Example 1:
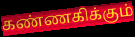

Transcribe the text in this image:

கண்ணகிக்கும்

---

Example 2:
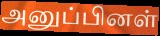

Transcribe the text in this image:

அனுப்பினள்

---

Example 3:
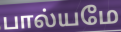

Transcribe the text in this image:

பால்யமே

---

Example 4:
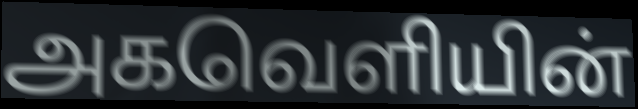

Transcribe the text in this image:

அகவெளியின்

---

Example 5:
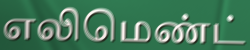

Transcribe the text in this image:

எலிமெண்ட்